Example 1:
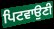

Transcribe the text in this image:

ਪਿਟਵਾਉਣੀ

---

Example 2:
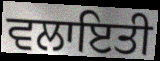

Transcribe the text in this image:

ਵਲਾਇਤੀ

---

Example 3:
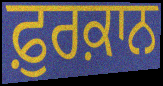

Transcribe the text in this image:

ਫ਼ੁਰਕ਼ਾਨ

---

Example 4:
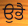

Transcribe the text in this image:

ਉਭੈ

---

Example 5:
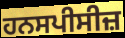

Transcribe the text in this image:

ਹਨਸਪੀਸੀਜ਼